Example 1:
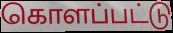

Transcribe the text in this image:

கொளப்பட்டு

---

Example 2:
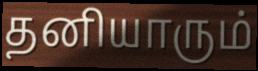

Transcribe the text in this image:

தனியாரும்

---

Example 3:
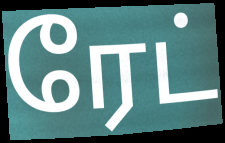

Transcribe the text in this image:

ரேட்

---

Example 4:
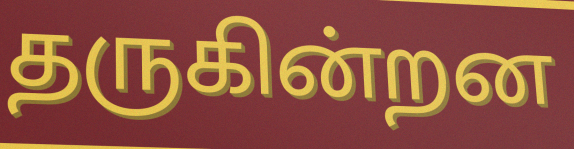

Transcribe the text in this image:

தருகின்றன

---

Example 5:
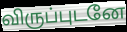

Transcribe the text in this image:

விருப்புடனே